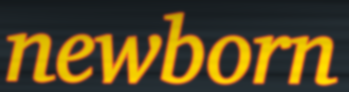
newborn